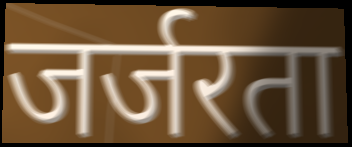
जर्जरता